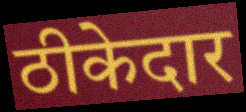
ठीकेदार